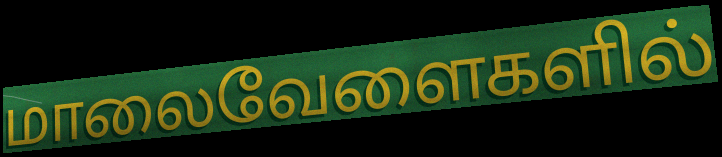
மாலைவேளைகளில்